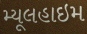
મ્યૂલહાઇમ